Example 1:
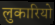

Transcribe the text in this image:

लुकारियो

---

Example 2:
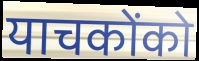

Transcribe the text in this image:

याचकोंको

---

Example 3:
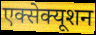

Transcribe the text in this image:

एक्सेक्यूशन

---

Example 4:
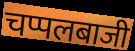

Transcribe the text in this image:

चप्पलबाजी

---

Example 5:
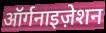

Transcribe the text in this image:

ऑर्गनाइज़ेशन